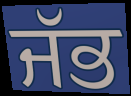
ਜੱਭ